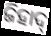
ଜିହାଦ୍